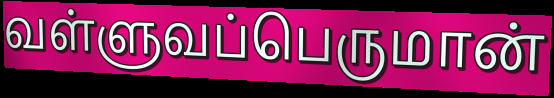
வள்ளுவப்பெருமான்